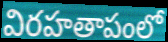
విరహతాపంలో